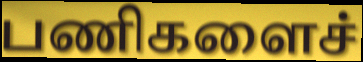
பணிகளைச்